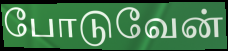
போடுவேன்